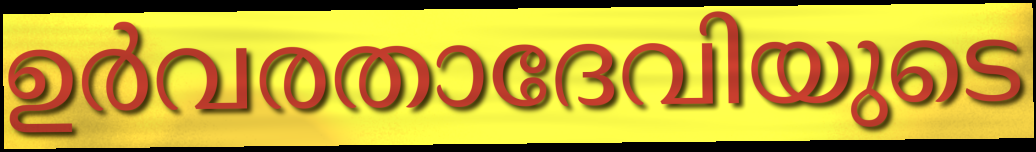
ഉർവരതാദേവിയുടെ